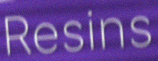
Resins